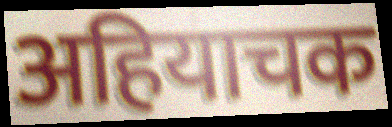
अहियाचक